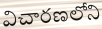
విచారణలోని